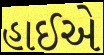
હાઈએ